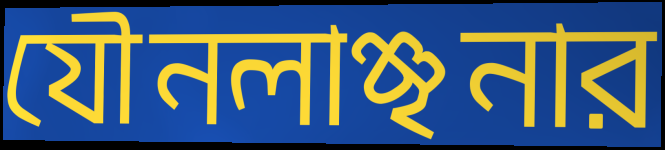
যৌনলাঞ্ছনার